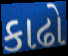
કાઢો